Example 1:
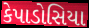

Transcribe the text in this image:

કેપાડોસિયા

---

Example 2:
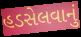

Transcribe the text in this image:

હડસેલવાનું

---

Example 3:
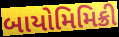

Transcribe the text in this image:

બાયોમિમિક્રી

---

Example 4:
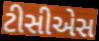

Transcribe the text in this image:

ટીસીએસ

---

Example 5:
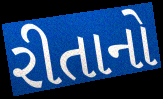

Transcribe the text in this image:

રીતાનો